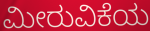
ಮೀರುವಿಕೆಯ